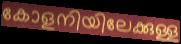
കോളനിയിലേക്കുള്ള